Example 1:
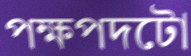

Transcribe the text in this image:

পক্ষপদটো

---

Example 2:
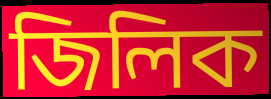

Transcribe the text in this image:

জিলিক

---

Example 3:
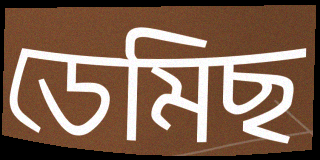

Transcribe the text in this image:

ডেমিছ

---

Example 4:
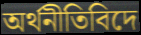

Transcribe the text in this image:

অৰ্থনীতিবিদে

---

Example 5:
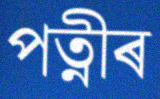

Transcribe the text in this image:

পত্নীৰ